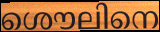
ശൌലിനെ